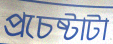
প্রচেষ্টাটা